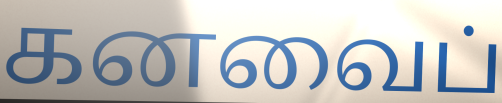
கனவைப்